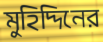
মুহিদ্দিনের